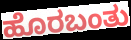
ಹೊರಬಂತು